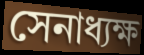
সেনাধ্যক্ষ